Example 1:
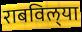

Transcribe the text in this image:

राबविल्या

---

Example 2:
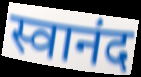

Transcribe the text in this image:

स्वानंद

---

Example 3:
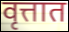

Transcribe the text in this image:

वृत्तात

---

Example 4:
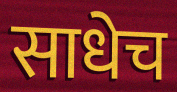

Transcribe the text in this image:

साधेच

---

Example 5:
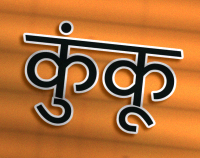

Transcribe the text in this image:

कुंकू